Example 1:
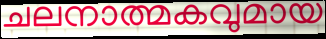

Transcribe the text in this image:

ചലനാത്മകവുമായ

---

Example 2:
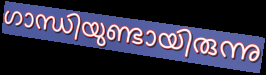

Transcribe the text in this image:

ഗാന്ധിയുണ്ടായിരുന്നു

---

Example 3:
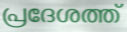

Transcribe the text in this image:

പ്രദേശത്ത്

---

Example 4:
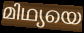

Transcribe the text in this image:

മിഥ്യയെ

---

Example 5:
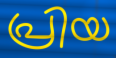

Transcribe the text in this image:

പ്രിയ